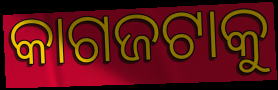
କାଗଜଟାକୁ